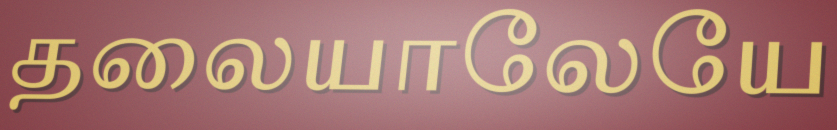
தலையாலேயே